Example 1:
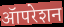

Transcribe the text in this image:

ॲापरेशन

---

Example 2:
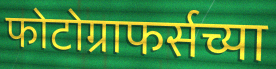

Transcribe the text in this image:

फोटोग्राफर्सच्या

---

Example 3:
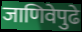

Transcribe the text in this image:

जाणिवेपुढे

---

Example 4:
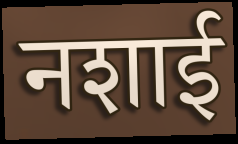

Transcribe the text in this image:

नशाई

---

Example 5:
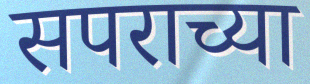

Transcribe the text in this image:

सपराच्या